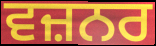
ਵਜ਼ਨਰ